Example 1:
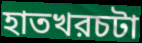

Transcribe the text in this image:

হাতখরচটা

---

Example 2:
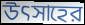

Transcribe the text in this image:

উৎসাহের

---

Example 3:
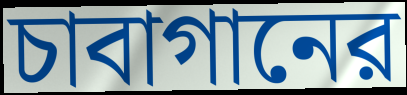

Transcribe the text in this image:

চাবাগানের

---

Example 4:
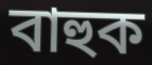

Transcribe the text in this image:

বাহুক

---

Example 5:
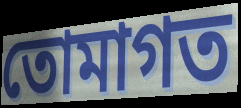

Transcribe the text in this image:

তোমাগত